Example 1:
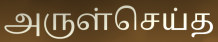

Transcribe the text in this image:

அருள்செய்த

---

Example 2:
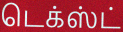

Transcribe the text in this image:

டெக்ஸ்ட்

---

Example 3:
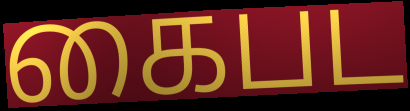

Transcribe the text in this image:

கைபட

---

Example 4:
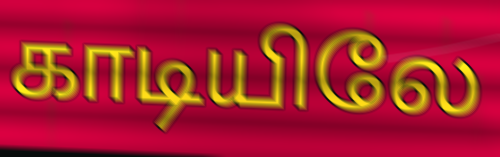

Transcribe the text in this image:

காடியிலே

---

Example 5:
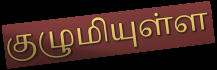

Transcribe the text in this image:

குழுமியுள்ள